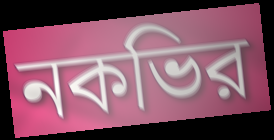
নকভির